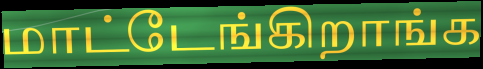
மாட்டேங்கிறாங்க